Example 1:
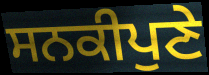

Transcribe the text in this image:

ਸਨਕੀਪੁਣੇ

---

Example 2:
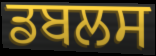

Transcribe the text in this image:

ਡਬਲਸ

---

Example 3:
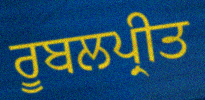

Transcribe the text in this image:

ਰੂਬਲਪ੍ਰੀਤ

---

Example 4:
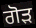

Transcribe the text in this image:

ਗੋੜ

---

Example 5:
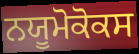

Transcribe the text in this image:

ਨਯੂਮੋਕੋਕਸ